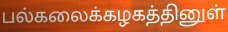
பல்கலைக்கழகத்தினுள்